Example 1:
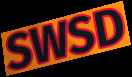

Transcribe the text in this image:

SWSD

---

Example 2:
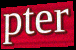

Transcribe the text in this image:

pter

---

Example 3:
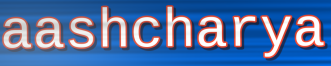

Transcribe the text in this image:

aashcharya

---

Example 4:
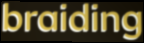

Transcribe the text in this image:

braiding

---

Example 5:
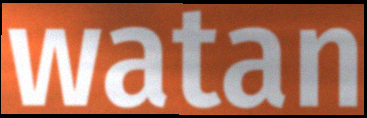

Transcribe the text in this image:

watan